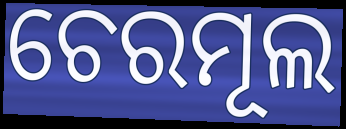
ଚେରମୂଲ